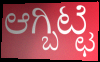
ಆಗ್ಬಿಟ್ಟೆ